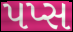
પપ્સ